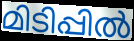
മിടിപ്പിൽ